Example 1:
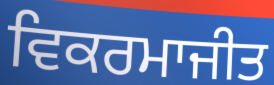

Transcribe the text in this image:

ਵਿਕਰਮਾਜੀਤ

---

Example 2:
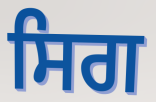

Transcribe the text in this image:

ਸਿਗ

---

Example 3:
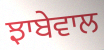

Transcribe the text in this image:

ਝਾਬੇਵਾਲ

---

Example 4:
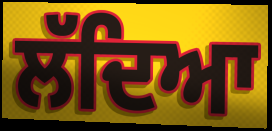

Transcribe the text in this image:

ਲੱਦਿਆ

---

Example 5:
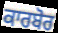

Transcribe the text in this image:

ਕਾਰਬੋਰ